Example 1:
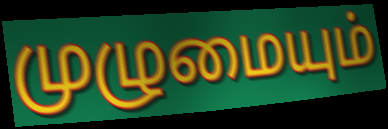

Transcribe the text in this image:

முழுமையும்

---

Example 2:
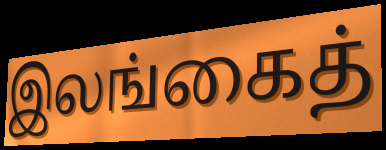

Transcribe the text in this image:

இலங்கைத்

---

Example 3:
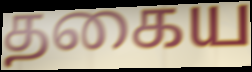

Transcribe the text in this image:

தகைய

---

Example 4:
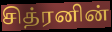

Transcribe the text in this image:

சித்ரனின்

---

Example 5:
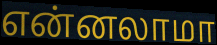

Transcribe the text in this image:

என்னலாமா